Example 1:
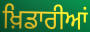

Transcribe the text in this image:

ਖ਼ਿਡਾਰੀਆਂ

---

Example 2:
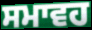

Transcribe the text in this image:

ਸਮਾਵਹ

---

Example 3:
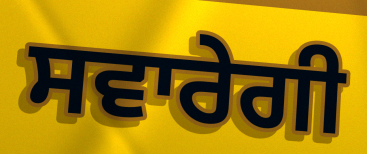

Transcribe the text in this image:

ਸਵਾਰੇਗੀ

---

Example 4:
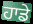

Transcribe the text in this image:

ਹਾਡੇ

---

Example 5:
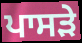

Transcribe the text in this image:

ਪਾਸੜੇ